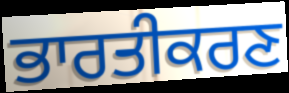
ਭਾਰਤੀਕਰਣ